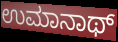
ಉಮಾನಾಥ್